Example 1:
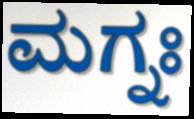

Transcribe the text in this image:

ಮಗ್ನಃ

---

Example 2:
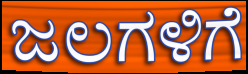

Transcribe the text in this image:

ಜಲಗಳಿಗೆ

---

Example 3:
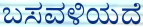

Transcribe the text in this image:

ಬಸವಳಿಯದೆ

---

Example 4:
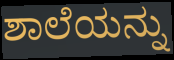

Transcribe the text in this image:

ಶಾಲೆಯನ್ನು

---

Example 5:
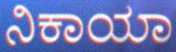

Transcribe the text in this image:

ನಿಕಾಯಾ